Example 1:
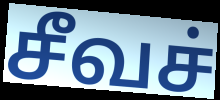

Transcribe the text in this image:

சீவச்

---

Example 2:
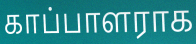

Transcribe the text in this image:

காப்பாளராக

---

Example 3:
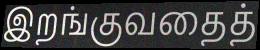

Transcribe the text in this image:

இறங்குவதைத்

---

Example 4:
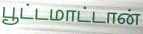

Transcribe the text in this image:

பூட்டமாட்டான்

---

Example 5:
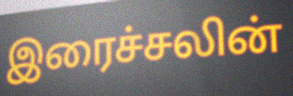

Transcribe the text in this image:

இரைச்சலின்